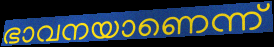
ഭാവനയാണെന്ന്